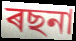
ৰছনা